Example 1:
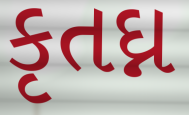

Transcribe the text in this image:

કૃતઘ્ન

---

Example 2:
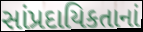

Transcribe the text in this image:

સાંપ્રદાયિકતાનાં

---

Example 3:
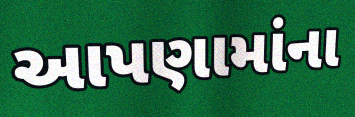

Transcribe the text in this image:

આપણામાંના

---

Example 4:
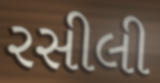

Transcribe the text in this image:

રસીલી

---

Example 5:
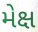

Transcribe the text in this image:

મેક્ષ